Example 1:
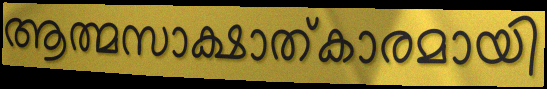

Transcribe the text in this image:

ആത്മസാക്ഷാത്കാരമായി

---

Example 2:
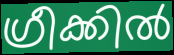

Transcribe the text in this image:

ഗ്രീക്കിൽ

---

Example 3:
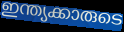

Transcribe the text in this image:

ഇന്ത്യക്കാരുടെ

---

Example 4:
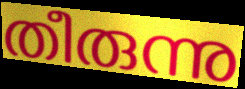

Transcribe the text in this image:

തീരുന്നു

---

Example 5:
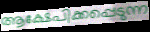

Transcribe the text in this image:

ആക്ഷേപിക്കപ്പെടുന്ന